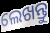
ଲେଖନ୍ତୁ